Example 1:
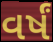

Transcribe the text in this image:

વર્ષં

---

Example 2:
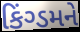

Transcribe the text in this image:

કિંગ્ડમને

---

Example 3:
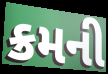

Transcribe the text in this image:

ક્રમની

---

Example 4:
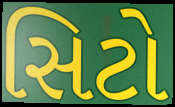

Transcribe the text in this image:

સિટો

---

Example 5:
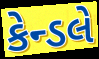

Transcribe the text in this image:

કેન્ડલે